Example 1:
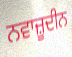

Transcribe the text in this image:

ਨਵਾਜ਼ੂਦੀਨ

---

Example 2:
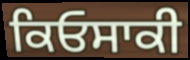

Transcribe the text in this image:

ਕਿਓਸਾਕੀ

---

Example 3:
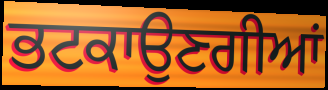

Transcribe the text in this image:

ਭਟਕਾਉਣਗੀਆਂ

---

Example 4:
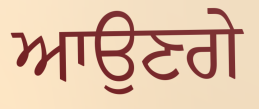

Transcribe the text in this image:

ਆਉਣਗੇ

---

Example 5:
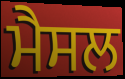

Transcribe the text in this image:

ਮੈਸਲ